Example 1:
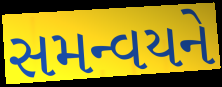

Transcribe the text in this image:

સમન્વયને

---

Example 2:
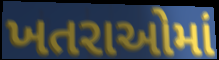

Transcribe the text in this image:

ખતરાઓમાં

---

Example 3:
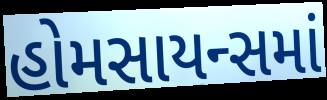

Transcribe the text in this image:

હોમસાયન્સમાં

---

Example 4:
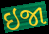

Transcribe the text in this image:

ઇજા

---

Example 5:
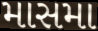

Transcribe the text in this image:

માસમા